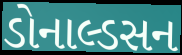
ડોનાલ્ડસન